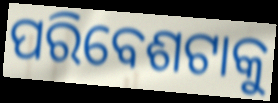
ପରିବେଶଟାକୁ